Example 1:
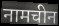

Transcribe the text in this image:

नामचीन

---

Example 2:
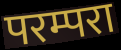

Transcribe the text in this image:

परम्परा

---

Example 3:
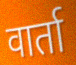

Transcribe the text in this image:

वार्ता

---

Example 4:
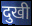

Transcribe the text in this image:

दुखी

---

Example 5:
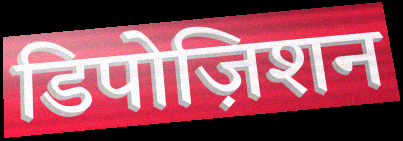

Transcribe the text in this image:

डिपोज़िशन